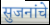
सुजनांचे